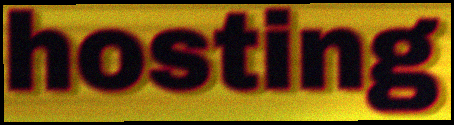
hosting